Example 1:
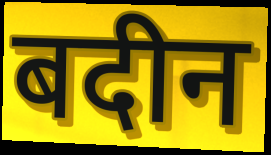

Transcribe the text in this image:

बदीन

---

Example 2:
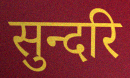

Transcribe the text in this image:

सुन्दरि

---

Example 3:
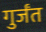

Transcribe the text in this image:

गुर्जंत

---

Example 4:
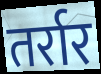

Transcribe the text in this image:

तर्रार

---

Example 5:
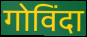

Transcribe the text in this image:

गोविंदा